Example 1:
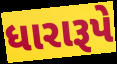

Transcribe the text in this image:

ધારારૂપે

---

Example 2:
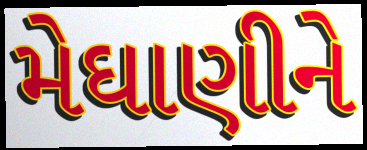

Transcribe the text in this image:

મેઘાણીને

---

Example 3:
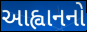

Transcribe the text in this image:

આહ્વાનનો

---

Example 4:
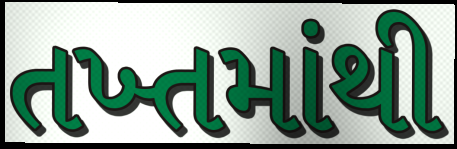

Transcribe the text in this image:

તખ્તમાંથી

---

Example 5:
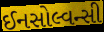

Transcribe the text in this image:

ઈનસોલ્વન્સી